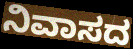
ನಿವಾಸದ